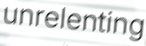
unrelenting